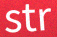
str